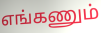
எங்கணும்